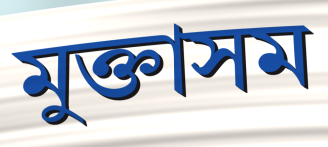
মুক্তাসম